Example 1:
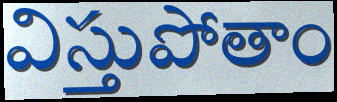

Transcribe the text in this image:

విస్తుపోతాం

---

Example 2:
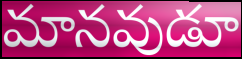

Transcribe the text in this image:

మానవుడూ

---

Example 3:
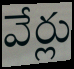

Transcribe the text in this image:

వేర్లు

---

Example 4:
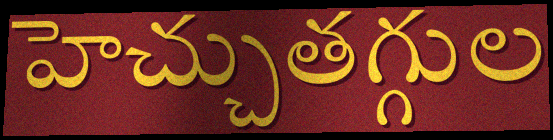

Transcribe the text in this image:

హెచ్చుతగ్గుల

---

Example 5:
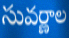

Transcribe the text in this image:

సువర్ణాల